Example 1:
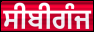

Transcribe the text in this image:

ਸੀਬੀਗੰਜ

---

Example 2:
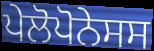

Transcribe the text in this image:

ਪੇਲੋਪੋਨੇਸਸ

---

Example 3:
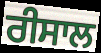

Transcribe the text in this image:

ਰੀਸਾਲ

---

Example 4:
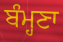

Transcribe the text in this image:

ਬੰਮ੍ਹਣਾ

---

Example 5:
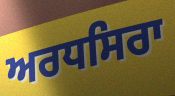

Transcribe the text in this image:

ਅਰਧਸਿਰਾ